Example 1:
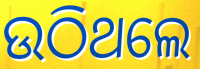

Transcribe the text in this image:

ଉଠିଥଲେ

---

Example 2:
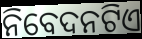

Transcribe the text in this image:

ନିବେଦନଟିଏ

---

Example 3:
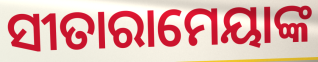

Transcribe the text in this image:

ସୀତାରାମେୟାଙ୍କ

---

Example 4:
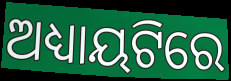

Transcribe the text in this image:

ଅଧ୍ୟାୟଟିରେ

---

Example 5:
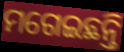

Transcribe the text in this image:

ମଗେଇଛନ୍ତି